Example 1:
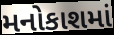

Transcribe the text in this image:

મનોકાશમાં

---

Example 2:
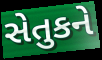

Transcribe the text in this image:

સેતુકને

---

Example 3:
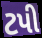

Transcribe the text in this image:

ટપી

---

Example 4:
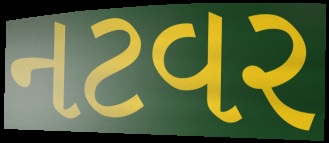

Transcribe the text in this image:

નટવર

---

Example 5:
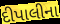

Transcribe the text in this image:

દીપાલીના